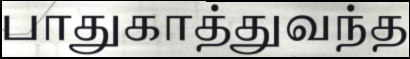
பாதுகாத்துவந்த